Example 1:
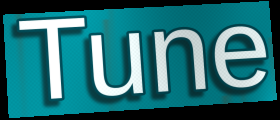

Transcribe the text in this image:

Tune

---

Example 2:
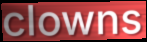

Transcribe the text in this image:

clowns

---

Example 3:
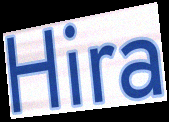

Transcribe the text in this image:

Hira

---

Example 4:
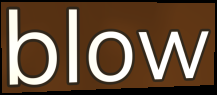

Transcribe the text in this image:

blow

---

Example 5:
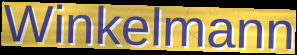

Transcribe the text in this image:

Winkelmann